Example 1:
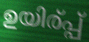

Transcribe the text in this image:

ഉയിര്പ്പ്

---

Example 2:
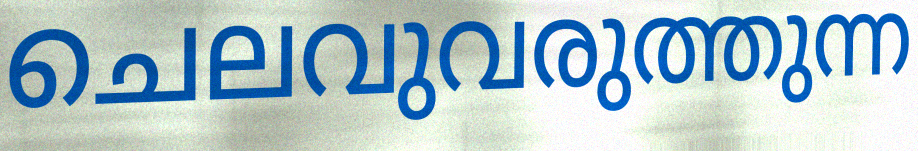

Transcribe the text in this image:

ചെലവുവരുത്തുന്ന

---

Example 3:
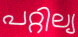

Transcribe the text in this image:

പറ്റില്യ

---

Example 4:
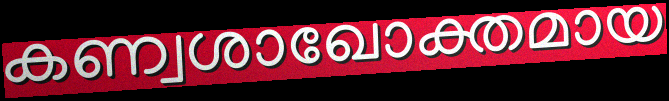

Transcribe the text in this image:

കണ്വശാഖോക്തമായ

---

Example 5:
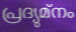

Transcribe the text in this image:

പ്രദ്യുമ്നം